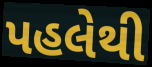
પહલેથી